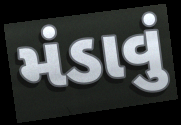
મંડાવું